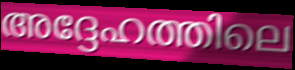
അദ്ദേഹത്തിലെ